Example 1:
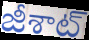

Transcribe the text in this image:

జీశాట్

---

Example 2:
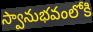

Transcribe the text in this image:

స్వానుభవంలోకి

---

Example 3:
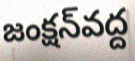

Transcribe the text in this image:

జంక్షన్‌వద్ద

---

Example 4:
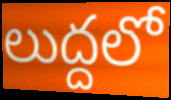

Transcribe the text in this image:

లుద్దలో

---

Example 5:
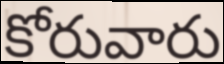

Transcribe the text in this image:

కోరువారు